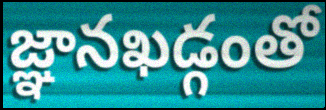
జ్ఞానఖడ్గంతో